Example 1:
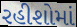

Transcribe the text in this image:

રહીશોમાં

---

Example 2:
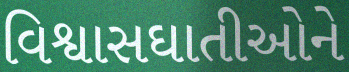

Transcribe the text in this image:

વિશ્વાસઘાતીઓને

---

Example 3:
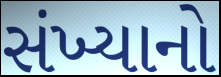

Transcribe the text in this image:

સંખ્યાનો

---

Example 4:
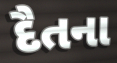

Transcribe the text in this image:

દૈતના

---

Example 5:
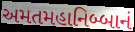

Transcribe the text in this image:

અમતમહાનિબ્બાનં